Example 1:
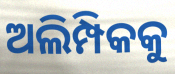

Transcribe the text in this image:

ଅଲିମ୍ପିକକୁ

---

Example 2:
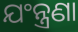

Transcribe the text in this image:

ଯଂନ୍ତ୍ରଣା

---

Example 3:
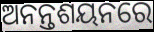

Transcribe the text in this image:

ଅନନ୍ତଶୟନରେ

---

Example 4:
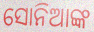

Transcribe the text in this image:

ସୋନିଆଙ୍କ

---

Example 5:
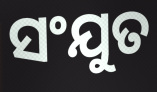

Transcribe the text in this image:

ସଂଯୁତ